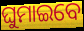
ଘୁମାଇବେ